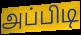
அப்பிடி